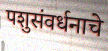
पशुसंवर्धनाचे